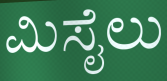
ಮಿಸೈಲು